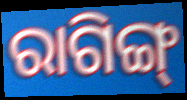
ରାଗିଙ୍ଗ୍